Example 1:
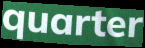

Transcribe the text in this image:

quarter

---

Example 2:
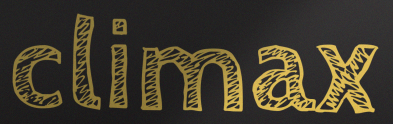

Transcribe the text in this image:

climax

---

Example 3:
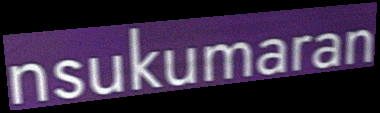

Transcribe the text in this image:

nsukumaran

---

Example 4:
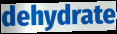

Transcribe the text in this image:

dehydrate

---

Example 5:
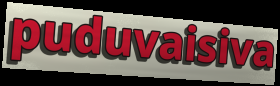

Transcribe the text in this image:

puduvaisiva